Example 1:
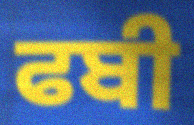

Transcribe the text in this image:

ਫਬੀ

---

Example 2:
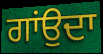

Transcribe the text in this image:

ਗਾਂਉਦਾ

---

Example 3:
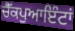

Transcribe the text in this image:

ਚੈੱਕਪੁਆਇੰਟਾਂ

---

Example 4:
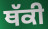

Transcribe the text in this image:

ਥੱਕੀ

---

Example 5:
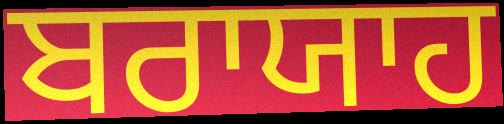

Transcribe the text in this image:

ਬਰਾਯਾਹ